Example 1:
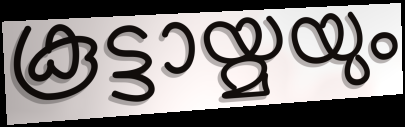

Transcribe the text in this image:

കൂട്ടായ്മയും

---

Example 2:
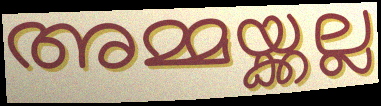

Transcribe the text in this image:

അമ്മയ്ക്കല്ല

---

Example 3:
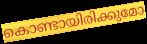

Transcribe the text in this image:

കൊണ്ടായിരിക്കുമോ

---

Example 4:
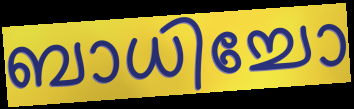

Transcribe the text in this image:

ബാധിച്ചോ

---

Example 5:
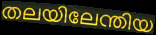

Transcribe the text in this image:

തലയിലേന്തിയ